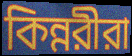
কিন্নরীরা